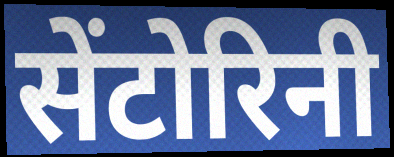
सेंटोरिनी